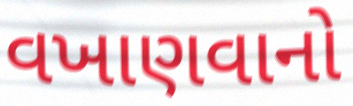
વખાણવાનો